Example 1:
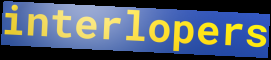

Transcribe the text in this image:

interlopers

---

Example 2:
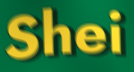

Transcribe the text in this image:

Shei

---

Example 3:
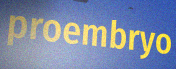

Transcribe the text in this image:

proembryo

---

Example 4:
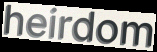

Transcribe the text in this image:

heirdom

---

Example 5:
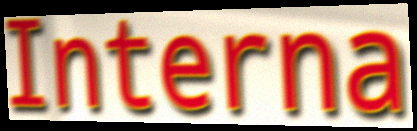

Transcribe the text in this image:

Interna